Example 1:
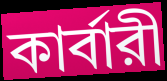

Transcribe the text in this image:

কার্বারী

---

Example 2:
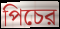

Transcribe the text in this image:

পিচের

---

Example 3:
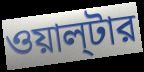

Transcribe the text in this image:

ওয়াল্‌টার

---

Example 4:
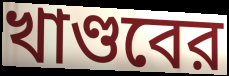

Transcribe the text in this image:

খাণ্ডবের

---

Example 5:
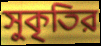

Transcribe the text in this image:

সুকৃতির